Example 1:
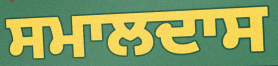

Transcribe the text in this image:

ਸਮਾਲਦਾਸ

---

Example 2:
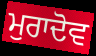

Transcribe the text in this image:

ਮੁਰਾਦੋਵ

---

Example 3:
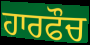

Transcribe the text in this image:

ਹਾਰਫੌਚ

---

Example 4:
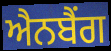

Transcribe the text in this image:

ਐਨਬੈਂਗ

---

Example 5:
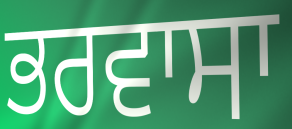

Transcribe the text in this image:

ਭਰਵਾਸਾ